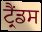
ਟ੍ਰੈਂਡਸ